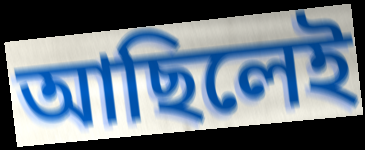
আছিলেই